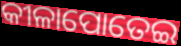
କୀଳାପୋତେଇ